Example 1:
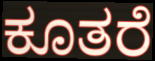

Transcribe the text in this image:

ಕೂತರೆ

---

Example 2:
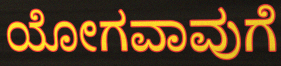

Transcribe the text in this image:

ಯೋಗವಾವುಗೆ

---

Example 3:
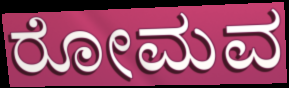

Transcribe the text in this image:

ರೋಮವ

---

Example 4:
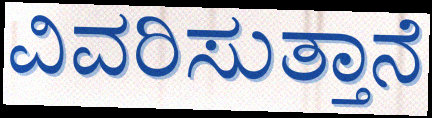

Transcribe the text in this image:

ವಿವರಿಸುತ್ತಾನೆ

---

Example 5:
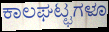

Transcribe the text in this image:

ಕಾಲಘಟ್ಟಗಳೂ